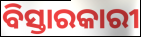
ବିସ୍ତାରକାରୀ